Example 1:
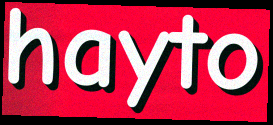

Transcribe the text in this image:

hayto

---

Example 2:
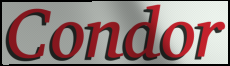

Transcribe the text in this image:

Condor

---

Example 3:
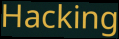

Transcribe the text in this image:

Hacking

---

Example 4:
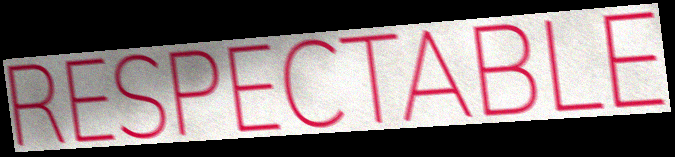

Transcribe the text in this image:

RESPECTABLE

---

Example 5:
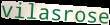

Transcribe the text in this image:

vilasrose